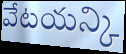
వేటయన్కి